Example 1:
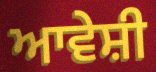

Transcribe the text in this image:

ਆਵੇਸ਼ੀ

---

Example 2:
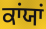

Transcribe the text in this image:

ਕਾਂਯਾਂ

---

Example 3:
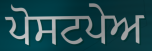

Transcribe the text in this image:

ਪੋਸਟਪੇਅ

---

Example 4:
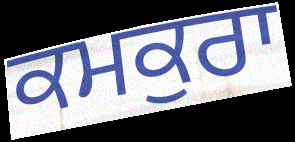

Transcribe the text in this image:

ਕਮਕੁਰਾ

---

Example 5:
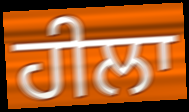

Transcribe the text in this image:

ਹੀਲਾ